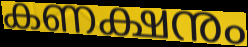
കണക്ഷനും